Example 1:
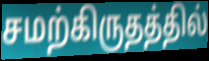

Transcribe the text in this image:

சமற்கிருதத்தில்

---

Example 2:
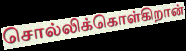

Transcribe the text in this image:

சொல்லிக்கொள்கிறான்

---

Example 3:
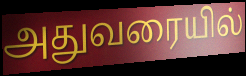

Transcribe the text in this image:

அதுவரையில்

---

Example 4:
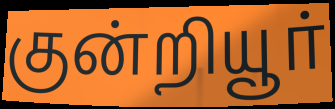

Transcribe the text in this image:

குன்றியூர்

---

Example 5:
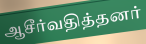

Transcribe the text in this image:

ஆசீர்வதித்தனர்